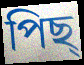
পিছ্